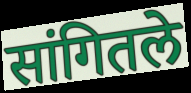
सांगितले